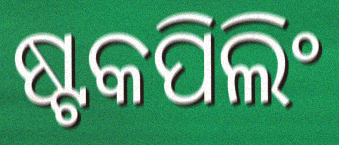
ଷ୍ଟକପିଲିଂ